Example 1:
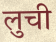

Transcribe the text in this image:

लुची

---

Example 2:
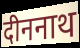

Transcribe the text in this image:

दीननाथ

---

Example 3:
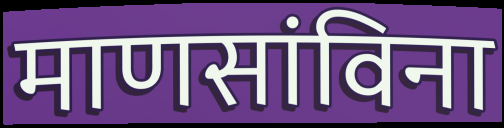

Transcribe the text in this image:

माणसांविना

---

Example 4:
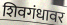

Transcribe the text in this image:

शिवगंधावर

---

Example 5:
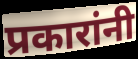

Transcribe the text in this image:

प्रकारांनी